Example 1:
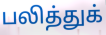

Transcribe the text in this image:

பலித்துக்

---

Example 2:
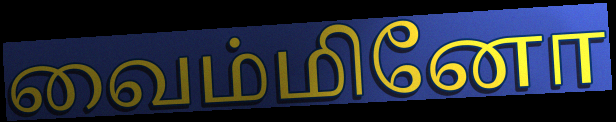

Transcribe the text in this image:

வைம்மினோ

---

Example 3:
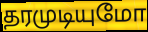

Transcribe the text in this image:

தரமுடியுமோ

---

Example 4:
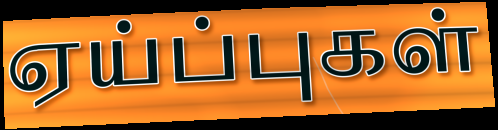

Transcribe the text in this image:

ஏய்ப்புகள்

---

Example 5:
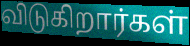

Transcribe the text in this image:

விடுகிறார்கள்